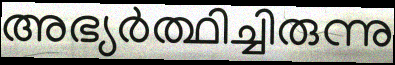
അഭ്യർത്ഥിച്ചിരുന്നു